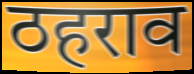
ठहराव